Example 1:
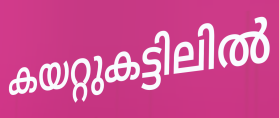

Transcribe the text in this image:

കയറ്റുകട്ടിലിൽ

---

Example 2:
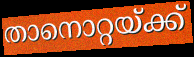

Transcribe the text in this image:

താനൊറ്റയ്ക്ക്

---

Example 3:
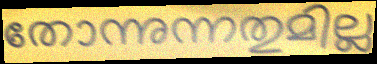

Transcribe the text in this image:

തോന്നുന്നതുമില്ല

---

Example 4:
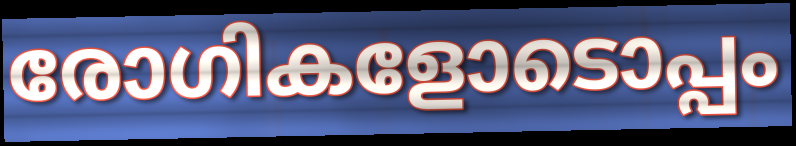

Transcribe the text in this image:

രോഗികളോടൊപ്പം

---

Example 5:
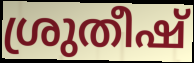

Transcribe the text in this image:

ശ്രുതീഷ്